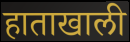
हाताखाली